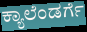
ಕ್ಯಾಲೆಂಡರ್ಗೆ